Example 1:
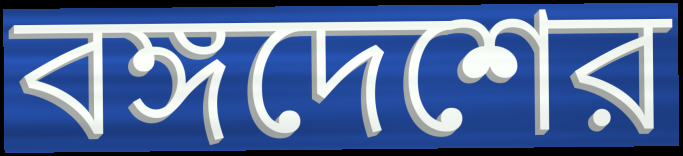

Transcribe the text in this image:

বঙ্গদেশের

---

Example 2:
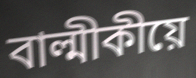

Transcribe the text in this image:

বাল্মীকীয়ে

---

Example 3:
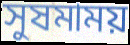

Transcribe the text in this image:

সুষমাময়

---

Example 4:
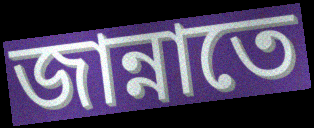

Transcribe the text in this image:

জান্নাতে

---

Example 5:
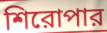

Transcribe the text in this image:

শিরোপার